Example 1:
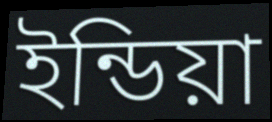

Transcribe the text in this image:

ইন্ডিয়া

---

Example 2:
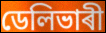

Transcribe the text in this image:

ডেলিভাৰী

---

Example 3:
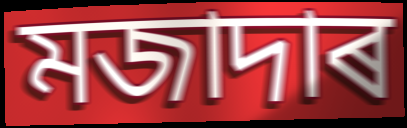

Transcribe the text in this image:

মজাদাৰ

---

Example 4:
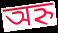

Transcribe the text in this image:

অহ্ন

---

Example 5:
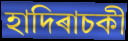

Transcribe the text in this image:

হাদিৰাচকী